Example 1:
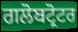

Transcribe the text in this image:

ਗਲੋਬਟ੍ਰੋਟਰ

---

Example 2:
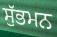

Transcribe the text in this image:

ਸੁੱਭਮਨ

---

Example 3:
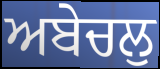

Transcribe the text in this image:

ਅਬੇਚਲੁ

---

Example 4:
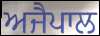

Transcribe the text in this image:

ਅਜੈਪਾਲ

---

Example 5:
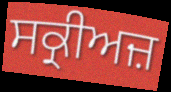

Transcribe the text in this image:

ਸਕ੍ਰੀਅਜ਼